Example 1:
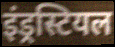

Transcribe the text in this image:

इंड्रस्टियल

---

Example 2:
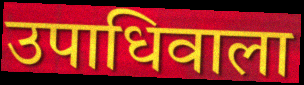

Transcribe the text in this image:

उपाधिवाला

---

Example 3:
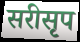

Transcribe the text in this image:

सरीसृप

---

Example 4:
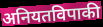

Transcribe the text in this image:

अनियतविपाकी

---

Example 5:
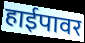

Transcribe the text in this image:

हाईपावर